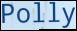
Polly